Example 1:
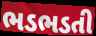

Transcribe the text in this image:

ભડભડતી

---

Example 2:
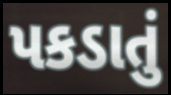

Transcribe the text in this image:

પકડાતું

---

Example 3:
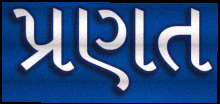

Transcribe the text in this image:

પ્રણત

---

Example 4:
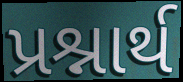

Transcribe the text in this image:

પ્રશ્નાર્થ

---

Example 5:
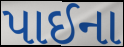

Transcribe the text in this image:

પાઈના